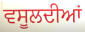
ਵਸੂਲਦੀਆਂ